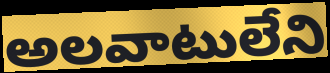
అలవాటులేని